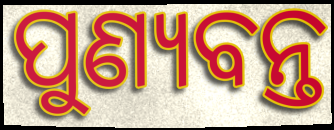
ପୁଣ୍ୟବନ୍ତ